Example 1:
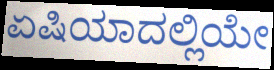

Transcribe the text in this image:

ಏಷಿಯಾದಲ್ಲಿಯೇ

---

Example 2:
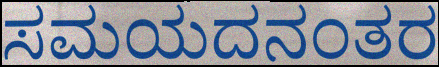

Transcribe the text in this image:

ಸಮಯದನಂತರ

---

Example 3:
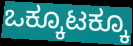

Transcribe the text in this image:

ಒಕ್ಕೂಟಕ್ಕೂ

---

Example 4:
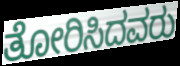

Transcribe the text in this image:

ತೋರಿಸಿದವರು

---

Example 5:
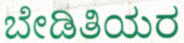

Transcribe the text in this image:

ಬೇಡಿತಿಯರ